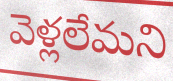
వెళ్లలేమని